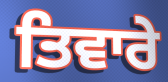
ਤਿਵਾਰੇ